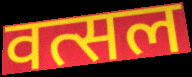
वत्सल